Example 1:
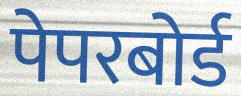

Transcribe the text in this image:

पेपरबोर्ड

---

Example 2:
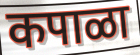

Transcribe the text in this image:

कपाळा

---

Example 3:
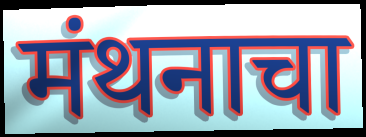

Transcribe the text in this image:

मंथनाचा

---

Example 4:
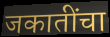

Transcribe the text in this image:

जकातींचा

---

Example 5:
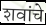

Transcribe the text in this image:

शवांचे